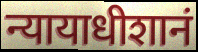
न्यायाधीशानं